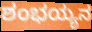
ಶಂಭಯ್ಯನ